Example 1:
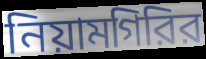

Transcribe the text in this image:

নিয়ামগিরির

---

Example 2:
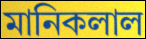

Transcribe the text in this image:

মানিকলাল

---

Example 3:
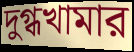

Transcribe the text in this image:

দুগ্ধখামার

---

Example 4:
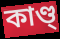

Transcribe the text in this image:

কাণ্ড্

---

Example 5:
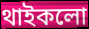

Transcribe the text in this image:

থাইকলো